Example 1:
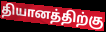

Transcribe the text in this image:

தியானத்திற்கு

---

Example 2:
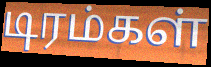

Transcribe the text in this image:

டிரம்கள்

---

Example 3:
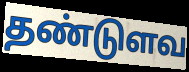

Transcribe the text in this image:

தண்டுளவ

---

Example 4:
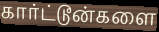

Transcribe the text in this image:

கார்ட்டூன்களை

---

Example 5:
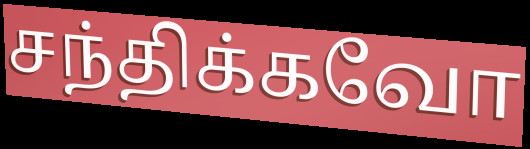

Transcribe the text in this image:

சந்திக்கவோ